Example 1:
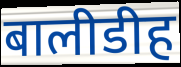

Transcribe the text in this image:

बालीडीह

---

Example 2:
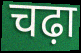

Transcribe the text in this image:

चढ़ा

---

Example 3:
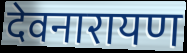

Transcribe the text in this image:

देवनारायण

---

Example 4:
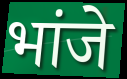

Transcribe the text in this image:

भांजे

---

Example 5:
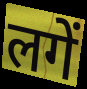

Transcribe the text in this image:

लगें